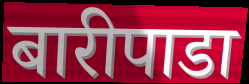
बारीपाडा